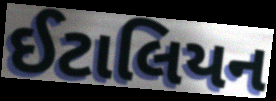
ઈટાલિયન